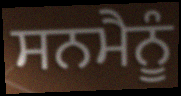
ਸਨਮੈਨੂੰ